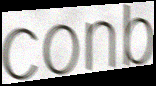
conb